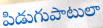
పిడుగుపాటులా